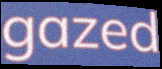
gazed